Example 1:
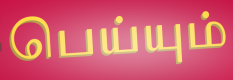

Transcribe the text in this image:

பெய்யும்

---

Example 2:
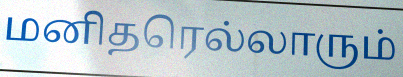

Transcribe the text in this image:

மனிதரெல்லாரும்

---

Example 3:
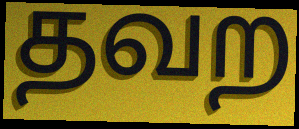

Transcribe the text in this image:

தவற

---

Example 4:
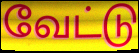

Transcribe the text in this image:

வேட்டு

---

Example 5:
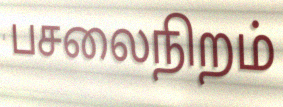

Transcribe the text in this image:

பசலைநிறம்